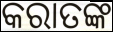
କରାତଙ୍କ